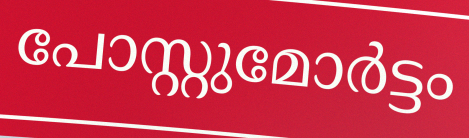
പോസ്റ്റുമോർട്ടം